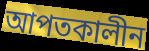
আপতকালীন